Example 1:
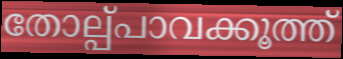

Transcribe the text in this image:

തോല്പ്പാവക്കൂത്ത്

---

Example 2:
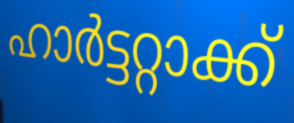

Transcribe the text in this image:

ഹാർട്ടറ്റാക്ക്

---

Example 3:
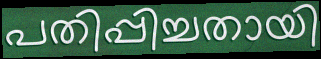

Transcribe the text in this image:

പതിപ്പിച്ചതായി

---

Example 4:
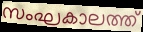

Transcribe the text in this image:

സംഘകാലത്ത്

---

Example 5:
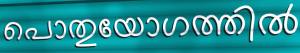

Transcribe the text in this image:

പൊതുയോഗത്തിൽ